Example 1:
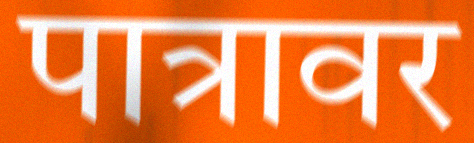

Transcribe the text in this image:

पात्रावर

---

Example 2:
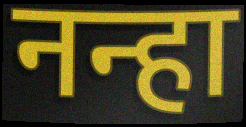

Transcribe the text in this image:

नन्हा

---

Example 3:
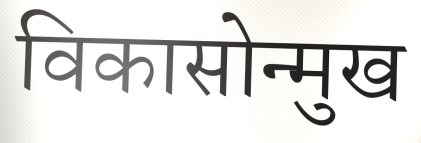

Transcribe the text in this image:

विकासोन्मुख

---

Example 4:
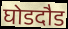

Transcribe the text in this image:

घोडदौड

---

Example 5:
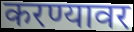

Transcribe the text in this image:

करण्यावर